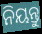
ନିୟନ୍ତୁ